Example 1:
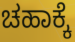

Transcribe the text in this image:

ಚಹಾಕ್ಕೆ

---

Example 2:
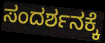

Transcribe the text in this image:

ಸಂದರ್ಶನಕ್ಕೆ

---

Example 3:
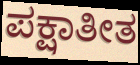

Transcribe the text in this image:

ಪಕ್ಷಾತೀತ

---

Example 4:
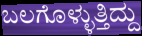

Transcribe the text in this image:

ಬಲಗೊಳ್ಳುತ್ತಿದ್ದು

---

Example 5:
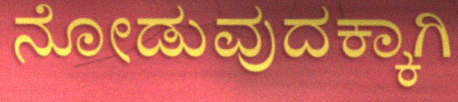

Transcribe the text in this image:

ನೋಡುವುದಕ್ಕಾಗಿ